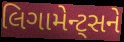
લિગામેન્ટ્સને